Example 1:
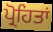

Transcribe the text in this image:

ਪ੍ਰੋਹਿਤਾਂ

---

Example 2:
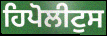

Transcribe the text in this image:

ਹਿਪੋਲੀਟੁਸ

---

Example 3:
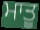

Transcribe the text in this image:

ਮਾਤੂ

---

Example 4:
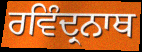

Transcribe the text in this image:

ਰਵਿੰਦ੍ਰਨਾਥ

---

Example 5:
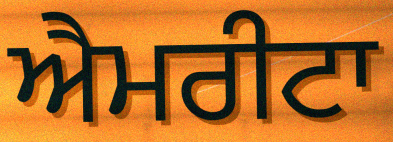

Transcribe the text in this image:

ਐਮਰੀਟਾ